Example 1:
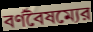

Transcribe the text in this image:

বর্ণবৈষম্যের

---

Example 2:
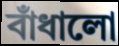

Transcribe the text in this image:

বাঁধালো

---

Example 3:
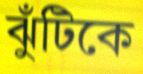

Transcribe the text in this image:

ঝুঁটিকে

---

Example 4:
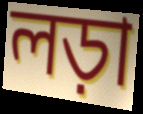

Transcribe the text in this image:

লড়া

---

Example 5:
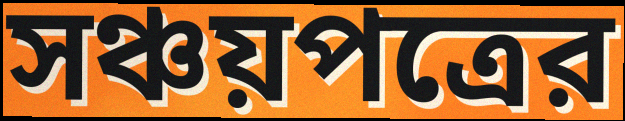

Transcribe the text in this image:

সঞ্চয়পত্রের